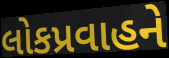
લોકપ્રવાહને